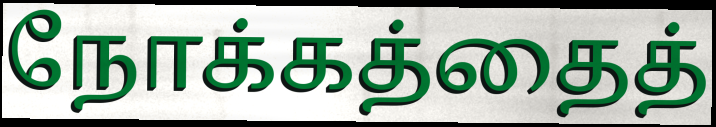
நோக்கத்தைத்